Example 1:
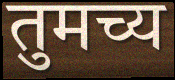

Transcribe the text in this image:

तुमच्य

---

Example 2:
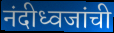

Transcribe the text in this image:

नंदीध्वजांची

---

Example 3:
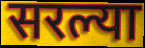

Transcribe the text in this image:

सरल्या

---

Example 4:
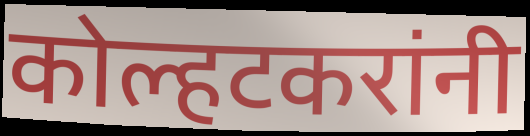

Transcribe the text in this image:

कोल्हटकरांनी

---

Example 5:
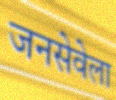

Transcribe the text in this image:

जनसेवेला